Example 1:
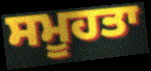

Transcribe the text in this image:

ਸਮੂਹਤਾ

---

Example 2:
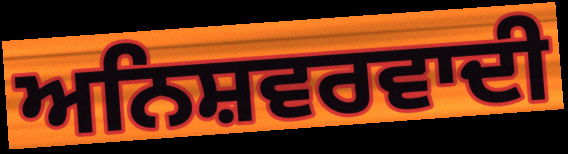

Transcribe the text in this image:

ਅਨਿਸ਼ਵਰਵਾਦੀ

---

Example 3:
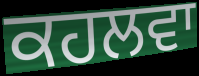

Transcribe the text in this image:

ਕਹਲਵਾ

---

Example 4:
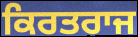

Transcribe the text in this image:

ਕਿਰਤਰਾਜ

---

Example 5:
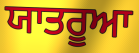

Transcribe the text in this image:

ਯਾਤਰੂਆ